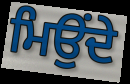
ਮਿਉਂਦੇ